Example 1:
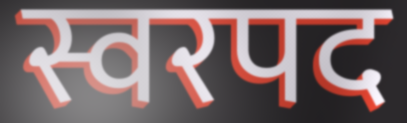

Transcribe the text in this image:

स्वरपद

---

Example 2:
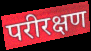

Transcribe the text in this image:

परीरक्षण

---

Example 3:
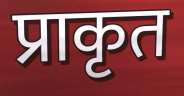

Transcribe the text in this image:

प्राकृत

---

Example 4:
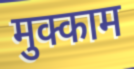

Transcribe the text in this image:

मुक्काम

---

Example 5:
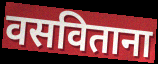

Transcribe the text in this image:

वसविताना